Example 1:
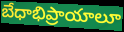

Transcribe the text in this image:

బేధాభిప్రాయాలూ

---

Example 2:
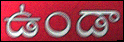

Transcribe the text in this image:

ఉండా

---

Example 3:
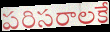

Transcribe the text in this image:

పరిసరాలకే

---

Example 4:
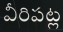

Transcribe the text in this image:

వీరిపట్ల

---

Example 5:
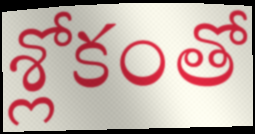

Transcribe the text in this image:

శ్లోకంతో